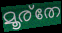
മൂര്തേ